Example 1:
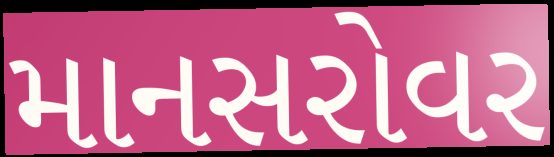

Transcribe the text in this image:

માનસરોવર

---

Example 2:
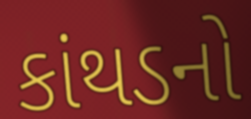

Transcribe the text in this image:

કાંથડનો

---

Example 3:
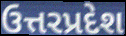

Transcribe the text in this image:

ઉત્તરપ્રદેશ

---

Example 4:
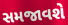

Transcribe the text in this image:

સમજાવશે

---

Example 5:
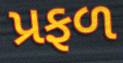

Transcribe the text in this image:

પ્રફળ